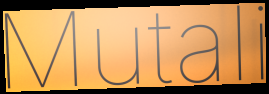
Mutali